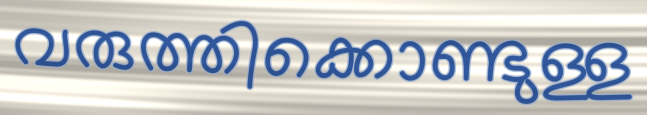
വരുത്തിക്കൊണ്ടുള്ള